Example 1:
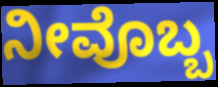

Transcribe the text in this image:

ನೀವೊಬ್ಬ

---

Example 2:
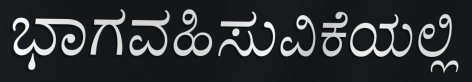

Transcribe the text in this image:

ಭಾಗವಹಿಸುವಿಕೆಯಲ್ಲಿ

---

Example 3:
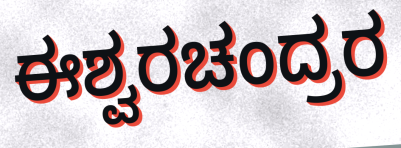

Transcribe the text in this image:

ಈಶ್ವರಚಂದ್ರರ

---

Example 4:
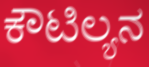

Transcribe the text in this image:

ಕೌಟಿಲ್ಯನ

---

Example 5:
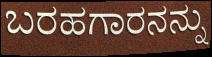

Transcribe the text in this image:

ಬರಹಗಾರನನ್ನು